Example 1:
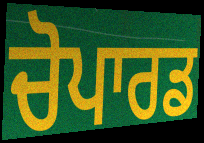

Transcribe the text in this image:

ਚੋਪਾਰਡ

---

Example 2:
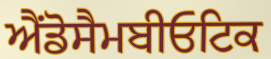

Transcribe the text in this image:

ਐਂਡੋਸੈਮਬੀਓਟਿਕ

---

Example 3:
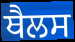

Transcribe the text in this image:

ਥੈਲਸ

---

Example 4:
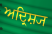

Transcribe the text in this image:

ਅਦ੍ਰਿਸ਼੍ਯ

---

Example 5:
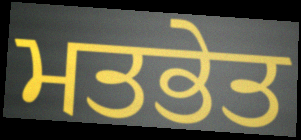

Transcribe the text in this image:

ਮਤਭੇਤ